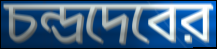
চন্দ্রদেবের